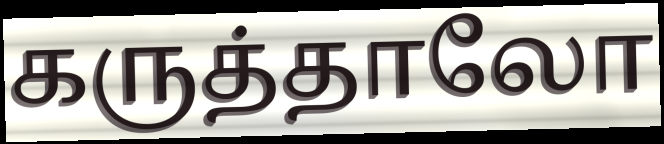
கருத்தாலோ